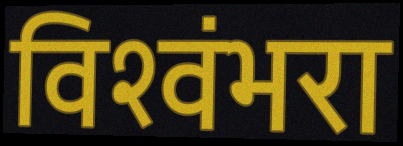
विश्वंभरा